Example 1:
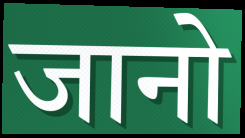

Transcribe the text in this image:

जानो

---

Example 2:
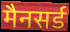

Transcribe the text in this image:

मैनसर्ड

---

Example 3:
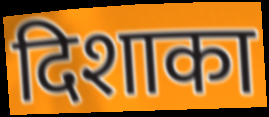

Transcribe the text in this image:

दिशाका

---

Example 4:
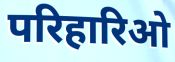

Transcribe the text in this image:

परिहारिओ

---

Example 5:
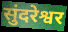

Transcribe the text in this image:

सुंदरेश्वर